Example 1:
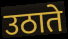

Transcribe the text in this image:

उठाते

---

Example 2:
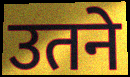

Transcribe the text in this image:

उतने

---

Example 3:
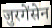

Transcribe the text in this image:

जुरगेंसेन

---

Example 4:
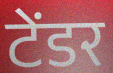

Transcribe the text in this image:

टेंडर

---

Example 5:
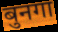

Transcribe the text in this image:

बुनगा